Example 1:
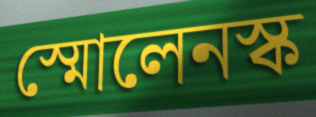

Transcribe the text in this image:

স্মোলেনস্ক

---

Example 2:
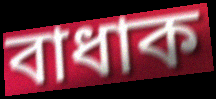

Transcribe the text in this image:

বাধাক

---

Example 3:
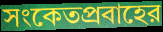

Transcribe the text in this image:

সংকেতপ্রবাহের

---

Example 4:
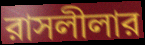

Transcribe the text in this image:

রাসলীলার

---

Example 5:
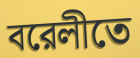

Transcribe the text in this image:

বরেলীতে